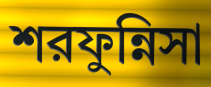
শরফুন্নিসা